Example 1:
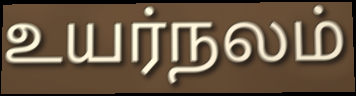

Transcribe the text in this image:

உயர்நலம்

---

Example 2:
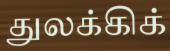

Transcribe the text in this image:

துலக்கிக்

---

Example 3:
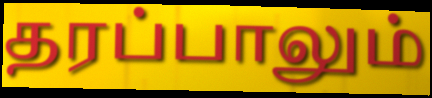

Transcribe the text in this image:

தரப்பாலும்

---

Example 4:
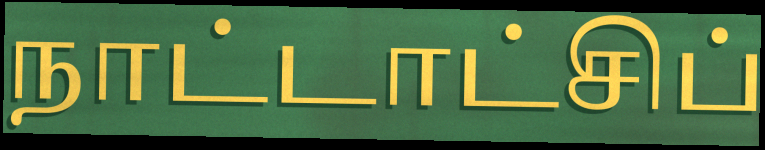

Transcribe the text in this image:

நாட்டாட்சிப்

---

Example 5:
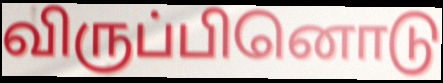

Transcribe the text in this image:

விருப்பினொடு